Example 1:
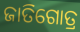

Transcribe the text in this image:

ଜାତିଗୋତ୍ର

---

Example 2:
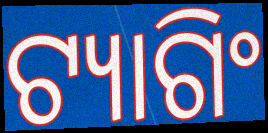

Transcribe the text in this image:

ଟ୍ୟାଗିଂ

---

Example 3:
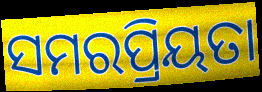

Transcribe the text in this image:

ସମରପ୍ରିୟତା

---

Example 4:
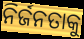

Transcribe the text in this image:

ନିର୍ଜନତାକୁ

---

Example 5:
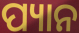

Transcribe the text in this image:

ପ୍ୟାନ